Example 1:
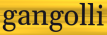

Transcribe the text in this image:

gangolli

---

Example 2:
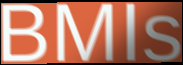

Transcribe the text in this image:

BMIs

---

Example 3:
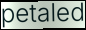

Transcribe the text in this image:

petaled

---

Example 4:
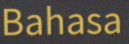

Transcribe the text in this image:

Bahasa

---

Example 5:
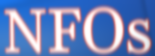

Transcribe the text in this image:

NFOs